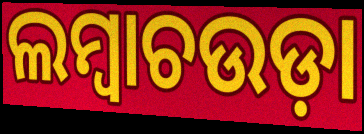
ଲମ୍ୱାଚଉଡ଼ା